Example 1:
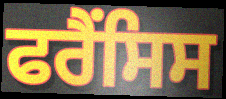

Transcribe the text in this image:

ਫਰੈਂਸਿਸ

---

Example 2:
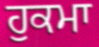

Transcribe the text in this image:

ਹੁਕਮਾ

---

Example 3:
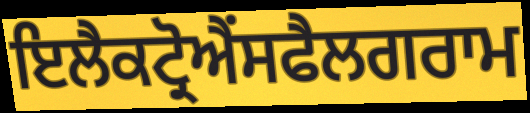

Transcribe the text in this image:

ਇਲੈਕਟ੍ਰੋਐਂਸਫੈਲਗਰਾਮ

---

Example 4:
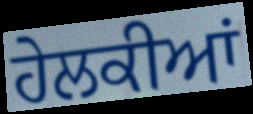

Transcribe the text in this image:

ਹੇਲਕੀਆਂ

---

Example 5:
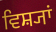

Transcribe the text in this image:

ਵਿਸ਼੍ਯਾਂ